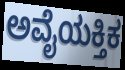
ಅವೈಯಕ್ತಿಕ